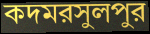
কদমরসুলপুর